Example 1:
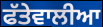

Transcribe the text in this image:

ਫੱਤੇਵਾਲੀਆ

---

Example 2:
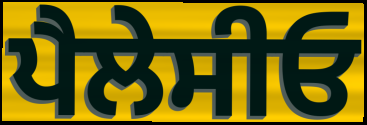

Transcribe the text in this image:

ਪੈਲੇਸੀਓ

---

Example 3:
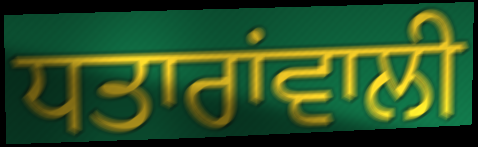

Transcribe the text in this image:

ਧਤਾਰਾਂਵਾਲੀ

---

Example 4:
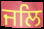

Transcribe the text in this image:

ਜਲਿ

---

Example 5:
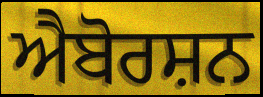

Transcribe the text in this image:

ਐਬੋਰਸ਼ਨ